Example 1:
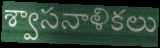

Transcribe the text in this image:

శ్వాసనాళికలు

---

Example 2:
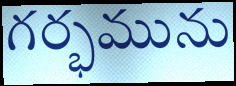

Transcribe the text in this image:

గర్భమును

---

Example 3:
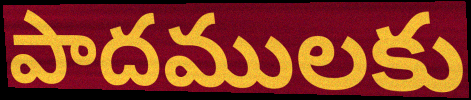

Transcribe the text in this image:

పాదములకు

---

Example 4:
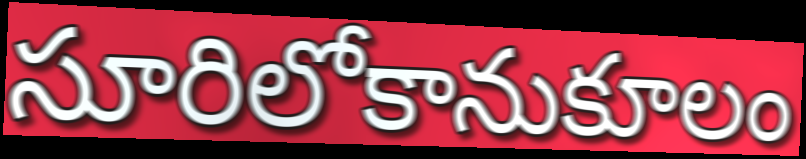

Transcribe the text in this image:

సూరిలోకానుకూలం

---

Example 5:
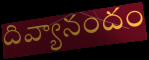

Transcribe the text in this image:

దివ్యానందం